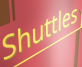
Shuttles